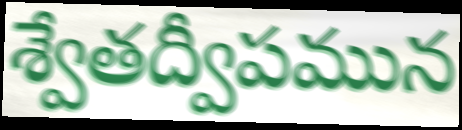
శ్వేతద్వీపమున